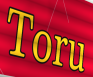
Toru